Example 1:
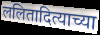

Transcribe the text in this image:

ललितादित्याच्या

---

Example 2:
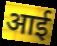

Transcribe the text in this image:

आई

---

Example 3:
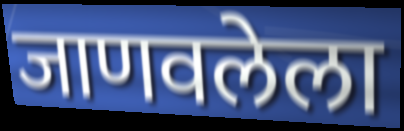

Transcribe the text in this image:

जाणवलेला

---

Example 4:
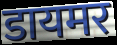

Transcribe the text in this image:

डायमर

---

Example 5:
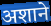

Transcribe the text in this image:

अशाने